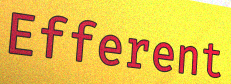
Efferent